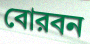
বোরবন